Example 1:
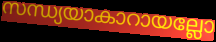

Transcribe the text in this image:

സന്ധ്യയാകാറായല്ലോ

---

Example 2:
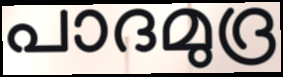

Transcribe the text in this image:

പാദമുദ്ര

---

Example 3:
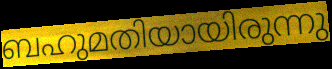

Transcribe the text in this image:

ബഹുമതിയായിരുന്നു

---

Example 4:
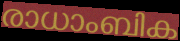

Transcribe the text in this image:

രാധാംബിക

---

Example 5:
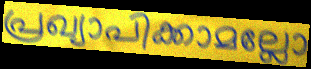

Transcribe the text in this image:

പ്രഖ്യാപിക്കാമല്ലോ